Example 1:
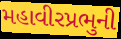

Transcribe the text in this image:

મહાવીરપ્રભુની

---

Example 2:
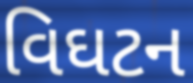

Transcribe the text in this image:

વિઘટન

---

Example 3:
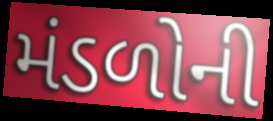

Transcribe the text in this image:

મંડળોની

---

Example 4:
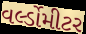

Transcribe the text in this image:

વર્લ્ડોમીટર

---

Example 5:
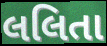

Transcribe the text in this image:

લલિતા